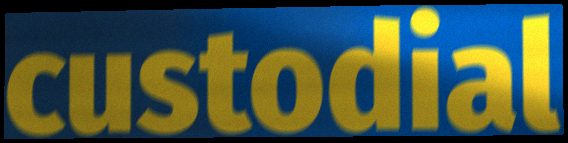
custodial